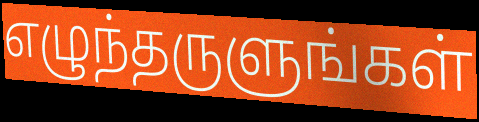
எழுந்தருளுங்கள்